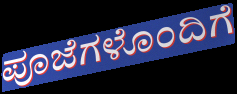
ಪೂಜೆಗಳೊಂದಿಗೆ